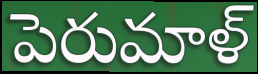
పెరుమాళ్